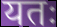
यतः